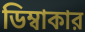
ডিম্বাকার